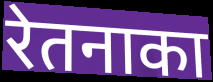
रेतनाका